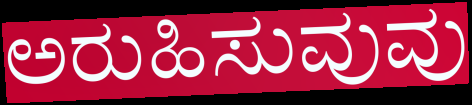
ಅರುಹಿಸುವುವು